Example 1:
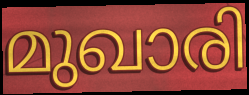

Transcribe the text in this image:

മുഖാരി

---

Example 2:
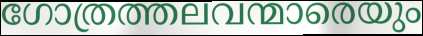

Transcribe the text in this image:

ഗോത്രത്തലവന്മാരെയും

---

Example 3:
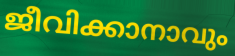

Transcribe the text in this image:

ജീവിക്കാനാവും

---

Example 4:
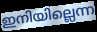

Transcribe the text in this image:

ഇനിയില്ലെന്ന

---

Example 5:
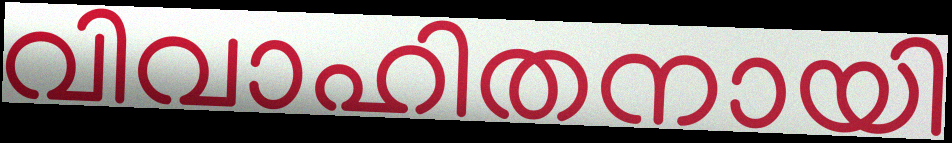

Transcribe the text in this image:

വിവാഹിതനായി